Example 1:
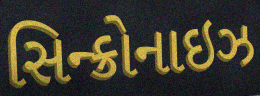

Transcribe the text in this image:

સિન્ક્રોનાઇઝ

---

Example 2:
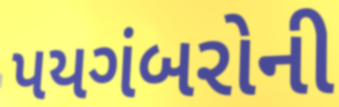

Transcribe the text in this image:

પયગંબરોની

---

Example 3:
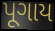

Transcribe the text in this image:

પૂગાય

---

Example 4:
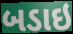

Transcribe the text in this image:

બડાઇ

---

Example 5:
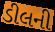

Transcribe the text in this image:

ડીલની